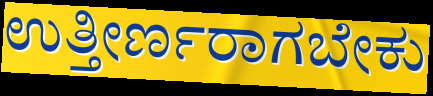
ಉತ್ತೀರ್ಣರಾಗಬೇಕು